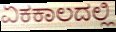
ಏಕಕಾಲದಲ್ಲಿ